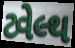
ટ્વેલ્થ